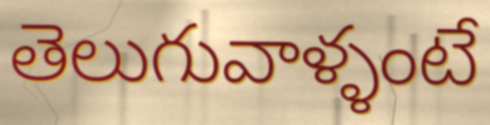
తెలుగువాళ్ళంటే